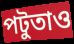
পটুতাও